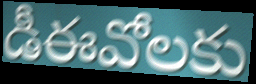
డీఈవోలకు